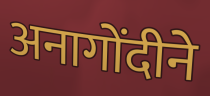
अनागोंदीने